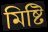
মিষ্টি